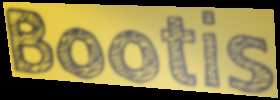
Bootis